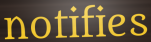
notifies